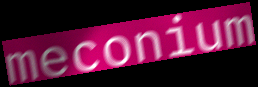
meconium